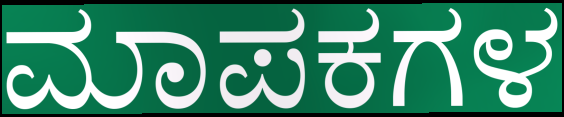
ಮಾಪಕಗಳ